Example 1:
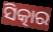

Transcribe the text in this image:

ସିତ୍କାର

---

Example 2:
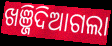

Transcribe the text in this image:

ଖଞ୍ଜିଦିଆଗଲା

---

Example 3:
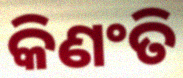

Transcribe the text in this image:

କିଣଂତି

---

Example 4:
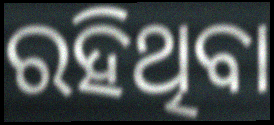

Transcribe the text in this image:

ରହିଥିବା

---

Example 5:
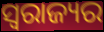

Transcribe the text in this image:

ସ୍ୱରାଜ୍ୟର